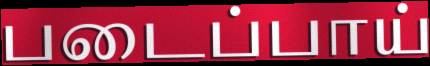
படைப்பாய்